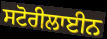
ਸਟੋਰੀਲਾਈਨ